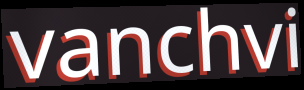
vanchvi